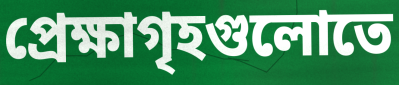
প্রেক্ষাগৃহগুলোতে